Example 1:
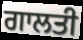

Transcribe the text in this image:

ਗਾਲਤੀ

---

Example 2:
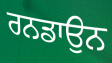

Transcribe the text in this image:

ਰਨਡਾਉਨ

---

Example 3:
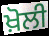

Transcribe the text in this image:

ਖ਼ੋਲੀ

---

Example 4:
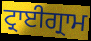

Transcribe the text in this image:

ਟ੍ਰਾਈਗ੍ਰਾਮ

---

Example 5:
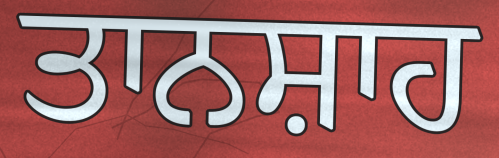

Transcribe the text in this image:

ਤਾਨਸ਼ਾਹ